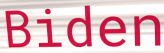
Biden